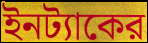
ইনট্যাকের